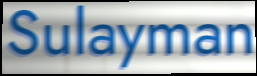
Sulayman